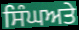
ਸਿੰਘਅਤੇ